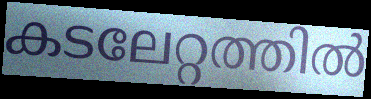
കടലേറ്റത്തിൽ